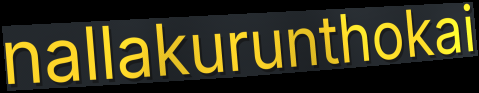
nallakurunthokai